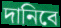
দানিবে